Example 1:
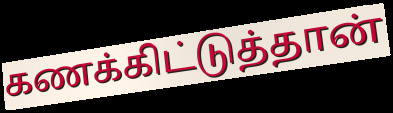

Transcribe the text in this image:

கணக்கிட்டுத்தான்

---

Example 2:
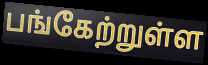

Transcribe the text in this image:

பங்கேற்றுள்ள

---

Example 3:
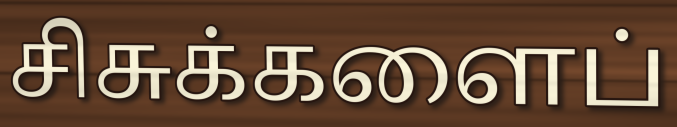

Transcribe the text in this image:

சிசுக்களைப்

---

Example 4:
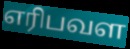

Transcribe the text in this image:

எரிபவள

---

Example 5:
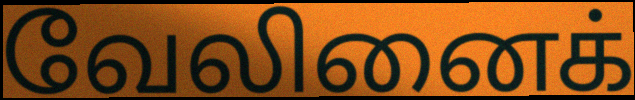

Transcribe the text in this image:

வேலினைக்